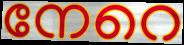
നേറെ